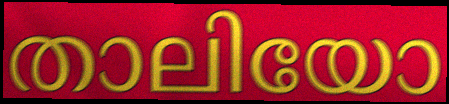
താലിയോ